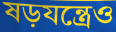
ষড়যন্ত্রেও